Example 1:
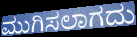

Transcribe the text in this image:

ಮುಗಿಸಲಾಗದು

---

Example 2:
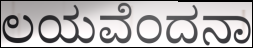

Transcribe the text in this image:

ಲಯವೆಂದನಾ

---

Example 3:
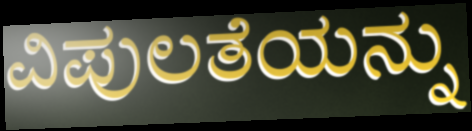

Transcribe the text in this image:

ವಿಪುಲತೆಯನ್ನು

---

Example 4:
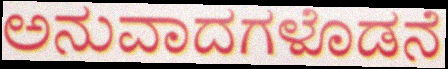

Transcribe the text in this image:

ಅನುವಾದಗಳೊಡನೆ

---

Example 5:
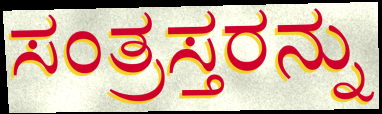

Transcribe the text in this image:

ಸಂತ್ರಸ್ತರನ್ನು